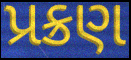
પ્રક્રણ